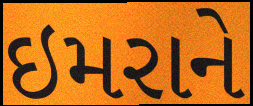
ઇમરાને